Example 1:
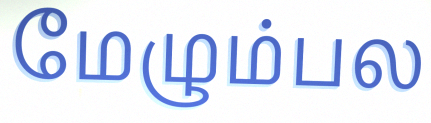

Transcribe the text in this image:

மேழும்பல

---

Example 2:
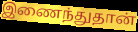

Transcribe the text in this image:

இணைந்துதான்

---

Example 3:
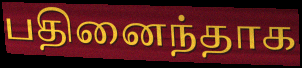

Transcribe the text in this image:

பதினைந்தாக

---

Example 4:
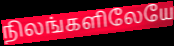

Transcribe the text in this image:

நிலங்களிலேயே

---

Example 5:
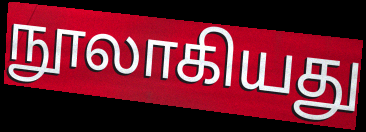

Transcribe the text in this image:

நூலாகியது